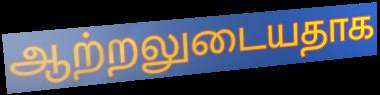
ஆற்றலுடையதாக